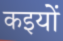
कइयों